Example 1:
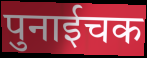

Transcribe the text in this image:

पुनाईचक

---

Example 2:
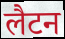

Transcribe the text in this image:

लैटन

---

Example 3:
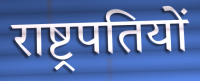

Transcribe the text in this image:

राष्ट्रपतियों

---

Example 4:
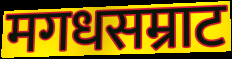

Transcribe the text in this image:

मगधसम्राट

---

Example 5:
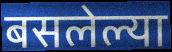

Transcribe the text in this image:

बसलेल्या